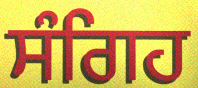
ਸੰਗਿਹ